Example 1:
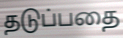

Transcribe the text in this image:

தடுப்பதை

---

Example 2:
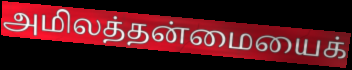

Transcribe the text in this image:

அமிலத்தன்மையைக்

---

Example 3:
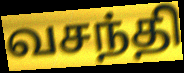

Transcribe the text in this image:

வசந்தி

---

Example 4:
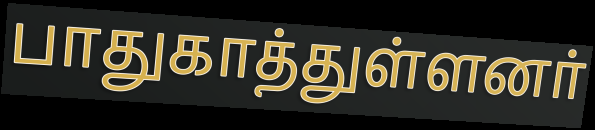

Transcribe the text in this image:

பாதுகாத்துள்ளனர்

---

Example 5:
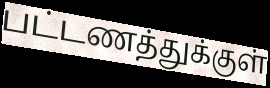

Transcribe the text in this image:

பட்டணத்துக்குள்